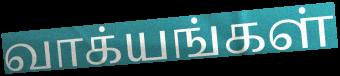
வாக்யங்கள்